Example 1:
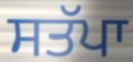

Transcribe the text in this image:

ਸਤੱਪਾ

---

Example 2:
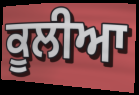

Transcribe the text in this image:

ਕੂਲੀਆ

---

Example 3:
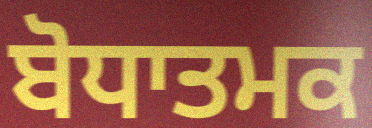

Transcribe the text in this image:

ਬੋਧਾਤਮਕ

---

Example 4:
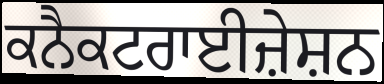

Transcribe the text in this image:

ਕਨੈਕਟਰਾਈਜ਼ੇਸ਼ਨ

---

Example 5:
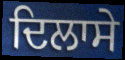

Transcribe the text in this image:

ਦਿਲਾਸੇ